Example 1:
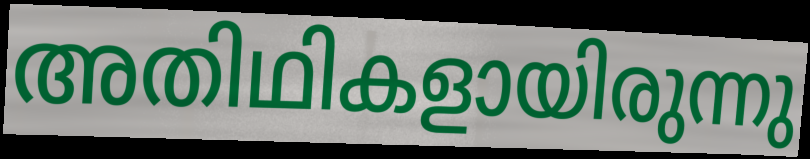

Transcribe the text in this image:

അതിഥികളായിരുന്നു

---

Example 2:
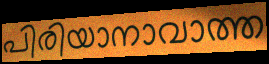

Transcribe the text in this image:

പിരിയാനാവാത്ത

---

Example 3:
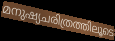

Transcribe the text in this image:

മനുഷ്യചരിത്രത്തിലൂടെ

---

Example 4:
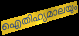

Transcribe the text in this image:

ഐതിഹ്യമാലയും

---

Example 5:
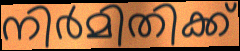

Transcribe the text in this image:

നിർമിതിക്ക്